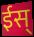
ईस्